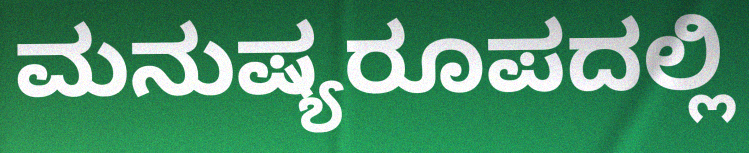
ಮನುಷ್ಯರೂಪದಲ್ಲಿ